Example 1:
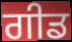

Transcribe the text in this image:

ਗੀਡ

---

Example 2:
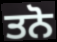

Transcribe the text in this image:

ਤਨੋ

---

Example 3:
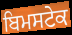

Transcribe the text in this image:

ਬਿਮਸਟੇਕ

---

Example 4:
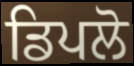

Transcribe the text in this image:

ਡਿਪਲੋ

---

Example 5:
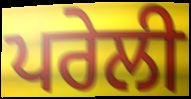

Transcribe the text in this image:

ਪਰੇਲੀ